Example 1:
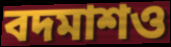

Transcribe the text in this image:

বদমাশও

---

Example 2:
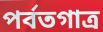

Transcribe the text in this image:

পর্বতগাত্র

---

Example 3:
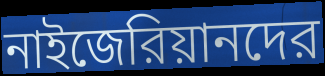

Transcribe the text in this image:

নাইজেরিয়ানদের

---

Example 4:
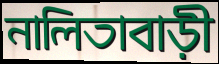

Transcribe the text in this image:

নালিতাবাড়ী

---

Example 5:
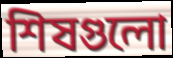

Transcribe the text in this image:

শিষগুলো